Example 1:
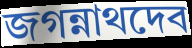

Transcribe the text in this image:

জগন্নাথদেব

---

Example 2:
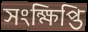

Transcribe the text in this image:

সংক্ষিপ্তি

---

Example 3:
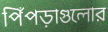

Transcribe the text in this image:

পিঁপড়াগুলোর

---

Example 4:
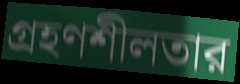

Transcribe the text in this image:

গ্রহণশীলতার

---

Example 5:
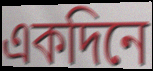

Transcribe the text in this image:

একদিনে